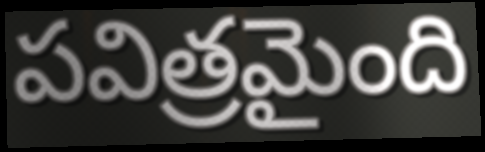
పవిత్రమైంది